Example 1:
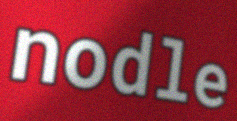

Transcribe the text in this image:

nodle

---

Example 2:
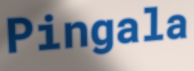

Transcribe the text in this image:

Pingala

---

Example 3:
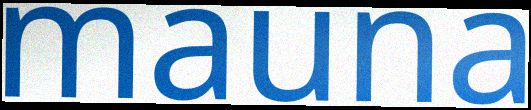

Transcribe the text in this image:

mauna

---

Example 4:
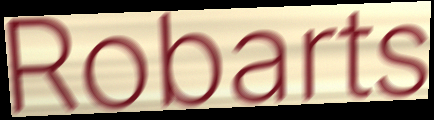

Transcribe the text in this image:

Robarts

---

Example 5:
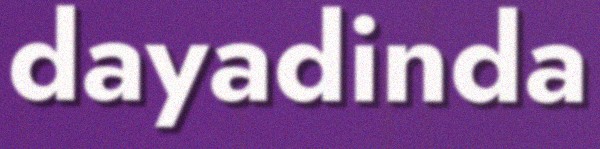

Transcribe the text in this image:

dayadinda